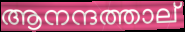
ആനന്ദത്താല്